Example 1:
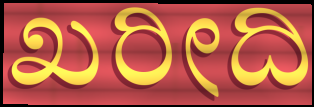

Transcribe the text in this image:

ಖರೀದಿ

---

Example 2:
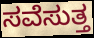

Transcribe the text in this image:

ಸವೆಸುತ್ತ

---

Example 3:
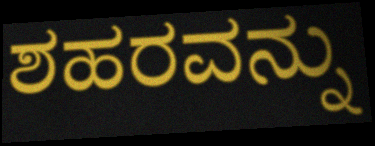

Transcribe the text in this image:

ಶಹರವನ್ನು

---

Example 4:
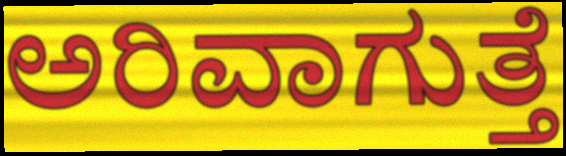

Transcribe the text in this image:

ಅರಿವಾಗುತ್ತೆ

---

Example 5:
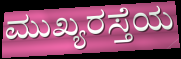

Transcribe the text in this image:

ಮುಖ್ಯರಸ್ತೆಯ